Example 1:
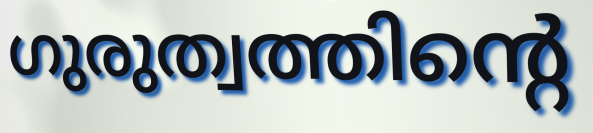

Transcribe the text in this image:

ഗുരുത്വത്തിന്റെ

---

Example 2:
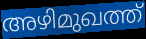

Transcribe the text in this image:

അഴിമുഖത്ത്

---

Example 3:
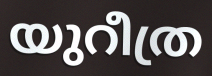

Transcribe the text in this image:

യുറീത്ര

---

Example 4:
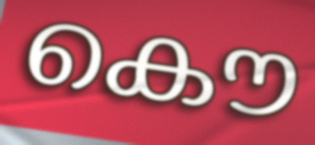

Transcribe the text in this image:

കൌ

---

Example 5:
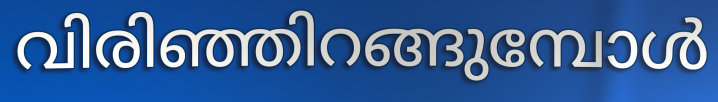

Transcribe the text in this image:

വിരിഞ്ഞിറങ്ങുമ്പോൾ